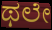
ಥಲೇ